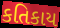
કતિકાય